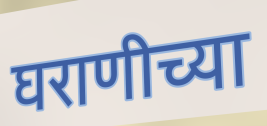
घराणीच्या